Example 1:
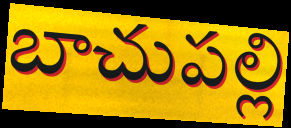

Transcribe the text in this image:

బాచుపల్లి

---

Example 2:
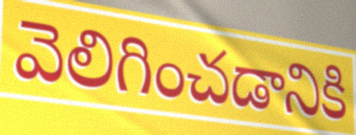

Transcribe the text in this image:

వెలిగించడానికి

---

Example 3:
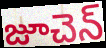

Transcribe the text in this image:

జూచెన్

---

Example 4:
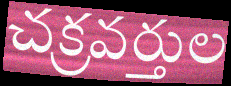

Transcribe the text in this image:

చక్రవర్తుల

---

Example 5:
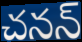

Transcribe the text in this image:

చనన్